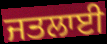
ਜਤਲਾਈ